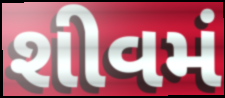
શીવમં